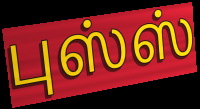
புஸ்ஸ்